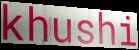
khushi